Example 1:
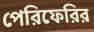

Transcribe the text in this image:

পেরিফেরির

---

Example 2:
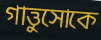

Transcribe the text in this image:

গাত্তুসোকে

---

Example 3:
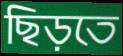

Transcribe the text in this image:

ছিড়তে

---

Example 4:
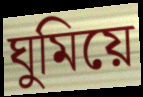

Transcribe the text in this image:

ঘুমিয়ে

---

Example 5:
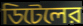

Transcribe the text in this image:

ডিটেলের